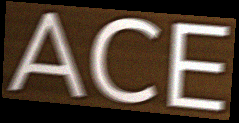
ACE